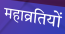
महाव्रतियों